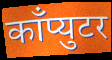
काँप्युटर